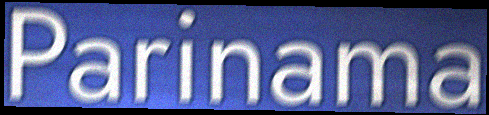
Parinama